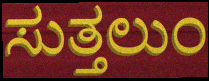
ಸುತ್ತಲುಂ